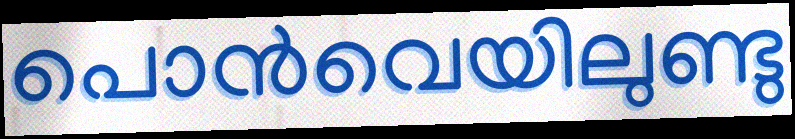
പൊൻവെയിലുണ്ടു